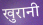
खुरानी